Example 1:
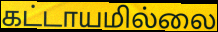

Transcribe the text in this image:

கட்டாயமில்லை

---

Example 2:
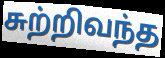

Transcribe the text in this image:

சுற்றிவந்த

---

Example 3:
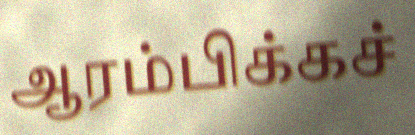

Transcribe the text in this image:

ஆரம்பிக்கச்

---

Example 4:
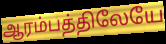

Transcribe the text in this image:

ஆரம்பத்திலேயே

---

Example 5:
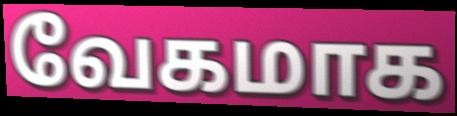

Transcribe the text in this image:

வேகமாக